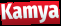
Kamya